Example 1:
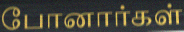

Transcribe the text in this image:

போனார்கள்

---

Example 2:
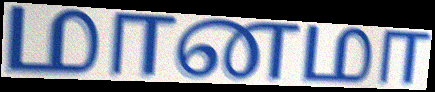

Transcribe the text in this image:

மானமா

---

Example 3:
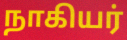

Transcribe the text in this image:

நாகியர்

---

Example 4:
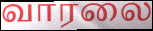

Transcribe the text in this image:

வாரலை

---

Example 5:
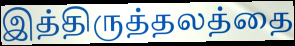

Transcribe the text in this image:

இத்திருத்தலத்தை